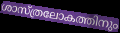
ശാസ്ത്രലോകത്തിനും